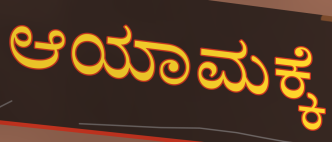
ಆಯಾಮಕ್ಕೆ